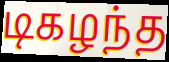
டிகழந்த